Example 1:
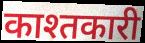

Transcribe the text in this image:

काश्तकारी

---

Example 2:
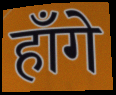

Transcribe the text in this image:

हाँगे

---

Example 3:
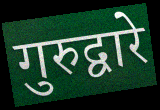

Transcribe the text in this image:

गुरुद्वारे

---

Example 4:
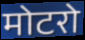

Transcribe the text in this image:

मोटरो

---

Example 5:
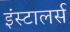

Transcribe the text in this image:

इंस्टालर्स